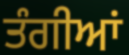
ਤੰਗੀਆਂ